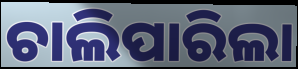
ଚାଲିପାରିଲା